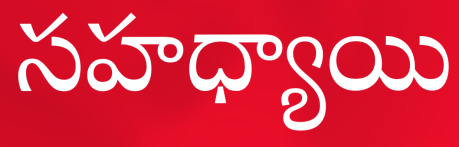
సహధ్యాయి